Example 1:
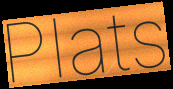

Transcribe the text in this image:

Plats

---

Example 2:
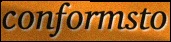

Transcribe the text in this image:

conformsto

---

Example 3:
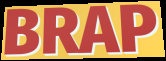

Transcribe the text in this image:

BRAP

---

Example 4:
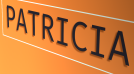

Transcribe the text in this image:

PATRICIA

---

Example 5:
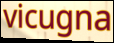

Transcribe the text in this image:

vicugna